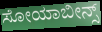
ಸೋಯಾಬೀನ್ಸ್